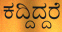
ಕದ್ದಿದ್ದರೆ